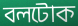
বলটোক